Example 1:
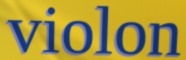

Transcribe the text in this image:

violon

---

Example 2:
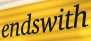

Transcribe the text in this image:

endswith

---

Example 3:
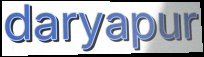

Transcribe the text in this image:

daryapur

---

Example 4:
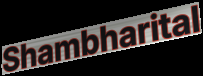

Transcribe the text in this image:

Shambharital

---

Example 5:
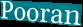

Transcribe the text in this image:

Pooran